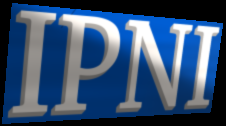
IPNI